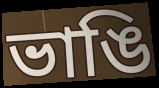
ভাঙি